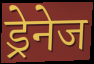
ड्रेनेज